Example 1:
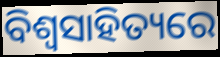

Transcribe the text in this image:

ବିଶ୍ବସାହିତ୍ୟରେ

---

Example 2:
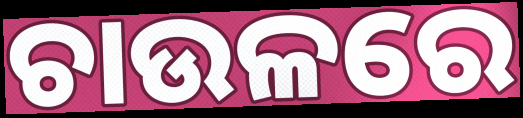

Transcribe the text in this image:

ଚାଉଳରେ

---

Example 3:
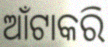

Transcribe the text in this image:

ଆଁଟାକରି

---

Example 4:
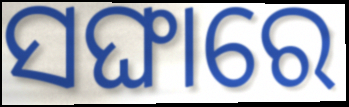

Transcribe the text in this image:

ସଙ୍ଘାରେ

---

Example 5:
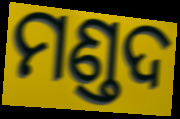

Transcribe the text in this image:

ମଣ୍ଡଦ